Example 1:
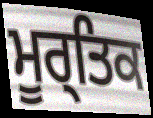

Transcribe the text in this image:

ਮੂਰ੍ਤਿਕ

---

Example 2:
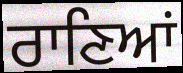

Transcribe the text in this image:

ਰਾਣਿਆਂ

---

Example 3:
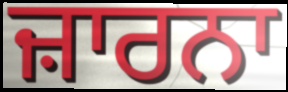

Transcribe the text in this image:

ਜ਼ਾਰਨਾ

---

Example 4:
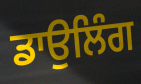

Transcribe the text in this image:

ਡਾਉਲਿੰਗ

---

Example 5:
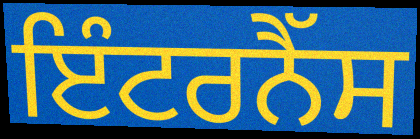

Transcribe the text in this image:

ਇੰਟਰਨੈੱਸ